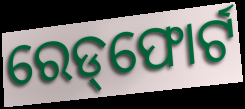
ରେଡ୍‌ଫୋର୍ଟ